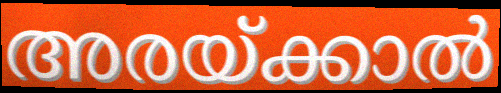
അരയ്ക്കാൽ